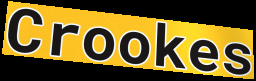
Crookes